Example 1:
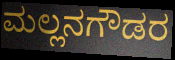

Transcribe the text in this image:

ಮಲ್ಲನಗೌಡರ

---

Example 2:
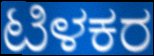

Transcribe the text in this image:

ಟಿಳಕರ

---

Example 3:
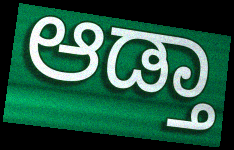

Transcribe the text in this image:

ಆಡ್ತಾ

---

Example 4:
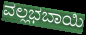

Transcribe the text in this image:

ವಲ್ಲಭಬಾಯಿ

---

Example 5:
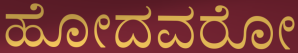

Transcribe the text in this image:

ಹೋದವರೋ